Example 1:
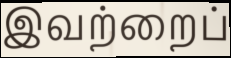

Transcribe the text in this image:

இவற்றைப்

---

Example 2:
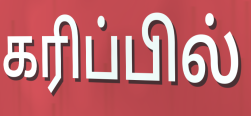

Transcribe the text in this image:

கரிப்பில்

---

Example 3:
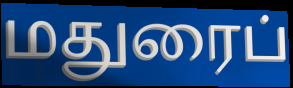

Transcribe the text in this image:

மதுரைப்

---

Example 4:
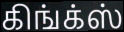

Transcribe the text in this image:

கிங்க்ஸ்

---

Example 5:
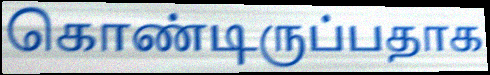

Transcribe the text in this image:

கொண்டிருப்பதாக